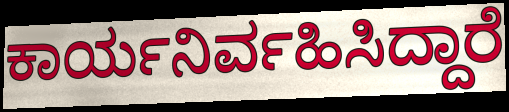
ಕಾರ್ಯನಿರ್ವಹಿಸಿದ್ದಾರೆ